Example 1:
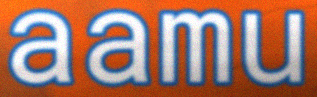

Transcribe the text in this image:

aamu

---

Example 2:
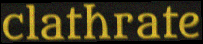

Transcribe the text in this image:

clathrate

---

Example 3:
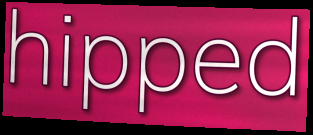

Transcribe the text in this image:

hipped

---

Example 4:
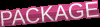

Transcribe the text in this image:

PACKAGE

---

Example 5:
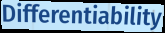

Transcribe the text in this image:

Differentiability